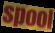
spool